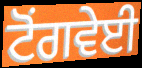
ਟੋਂਗਵੇਈ